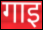
गाइ